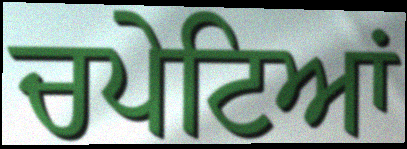
ਚਪੇਟਿਆਂ